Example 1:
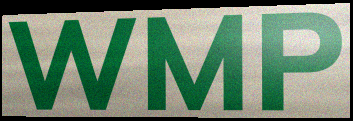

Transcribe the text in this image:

WMP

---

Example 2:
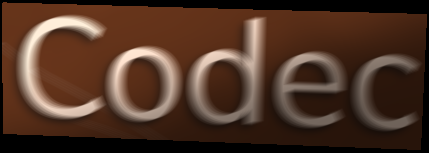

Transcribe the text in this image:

Codec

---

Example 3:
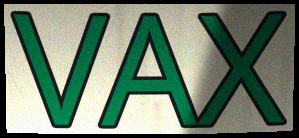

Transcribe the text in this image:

VAX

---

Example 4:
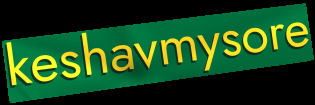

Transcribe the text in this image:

keshavmysore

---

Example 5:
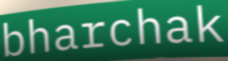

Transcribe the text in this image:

bharchak